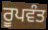
ਰੂਪਵੰਤ